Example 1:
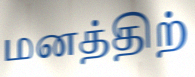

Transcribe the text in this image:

மனத்திற்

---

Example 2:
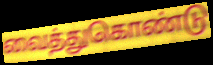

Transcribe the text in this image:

வைத்துகொண்டு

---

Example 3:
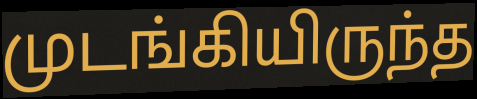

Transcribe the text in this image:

முடங்கியிருந்த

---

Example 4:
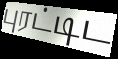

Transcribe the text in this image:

புரட்டிட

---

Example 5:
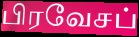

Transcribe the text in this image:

பிரவேசப்